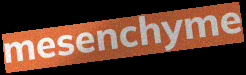
mesenchyme